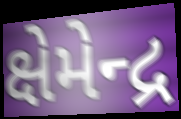
ક્ષેમેન્દ્ર